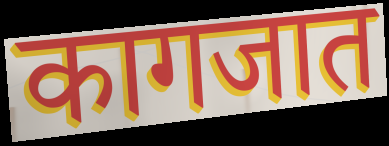
कागजात